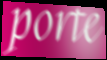
porte